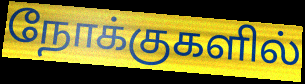
நோக்குகளில்